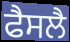
ਫੈਸਲੈ